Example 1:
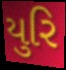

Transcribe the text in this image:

યુરિ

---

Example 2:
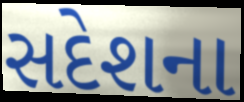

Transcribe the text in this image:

સદેશના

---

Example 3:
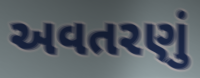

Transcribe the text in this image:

અવતરણું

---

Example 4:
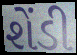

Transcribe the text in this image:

શેંડી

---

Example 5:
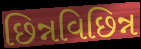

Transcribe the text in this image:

છિન્નવિછિન્ન